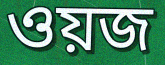
ওয়জ